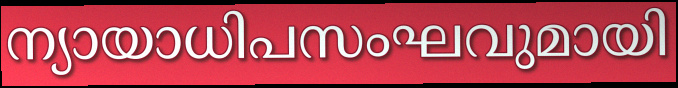
ന്യായാധിപസംഘവുമായി